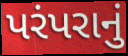
પરંપરાનું